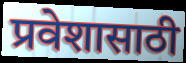
प्रवेशासाठी